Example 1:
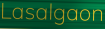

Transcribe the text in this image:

Lasalgaon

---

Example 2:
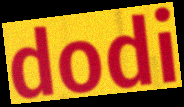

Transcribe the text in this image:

dodi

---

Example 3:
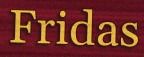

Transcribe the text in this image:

Fridas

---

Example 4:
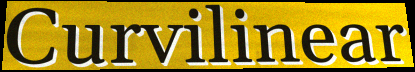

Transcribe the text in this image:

Curvilinear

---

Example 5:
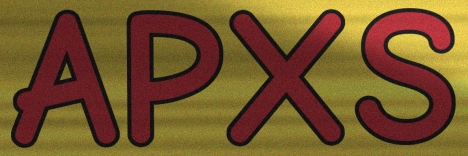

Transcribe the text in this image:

APXS